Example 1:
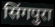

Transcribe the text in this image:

सिंगपुरा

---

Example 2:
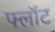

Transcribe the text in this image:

फ्लॉट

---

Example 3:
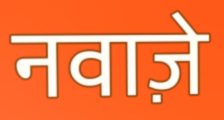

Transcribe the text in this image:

नवाज़े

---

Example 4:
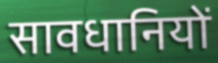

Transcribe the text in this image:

सावधानियों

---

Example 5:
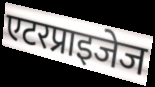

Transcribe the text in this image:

एटरप्राइजेज